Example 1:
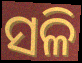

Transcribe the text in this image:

ସଳି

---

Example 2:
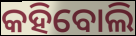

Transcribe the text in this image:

କହିବୋଲି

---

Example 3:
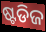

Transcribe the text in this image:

ଷ୍ଟଡିଜ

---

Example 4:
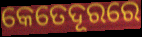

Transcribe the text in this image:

କେତେଦୂରରେ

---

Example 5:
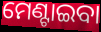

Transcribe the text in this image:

ମେଣ୍ଟାଇବା